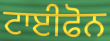
ਟਾਈਫੋਨ